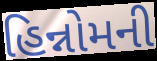
હિન્નોમની